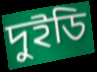
দুইডি